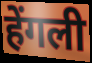
हेंगली